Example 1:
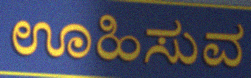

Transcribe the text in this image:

ಊಹಿಸುವ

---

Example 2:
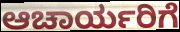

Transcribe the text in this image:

ಆಚಾರ್ಯರಿಗೆ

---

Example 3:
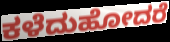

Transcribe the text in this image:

ಕಳೆದುಹೋದರೆ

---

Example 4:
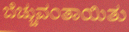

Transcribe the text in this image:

ಬೆಚ್ಚುವಂತಾಯಿತು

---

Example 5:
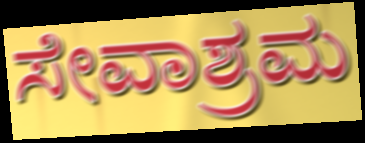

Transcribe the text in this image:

ಸೇವಾಶ್ರಮ